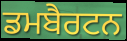
ਡਮਬੈਰਟਨ